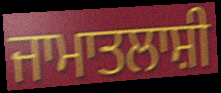
ਜਾਮਾਤਲਾਸ਼ੀ